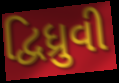
દ્વિધ્રુવી